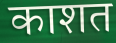
काशत